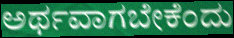
ಅರ್ಥವಾಗಬೇಕೆಂದು